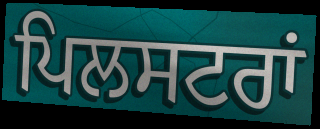
ਪਿਲਸਟਰਾਂ